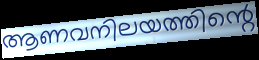
ആണവനിലയത്തിന്റെ